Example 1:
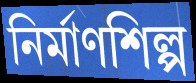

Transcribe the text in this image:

নির্মাণশিল্প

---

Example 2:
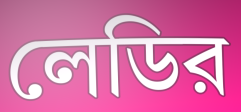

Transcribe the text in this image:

লেডির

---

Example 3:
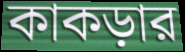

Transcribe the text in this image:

কাকড়ার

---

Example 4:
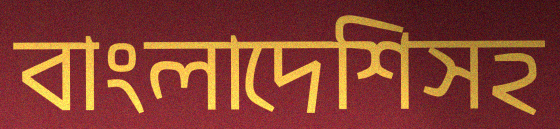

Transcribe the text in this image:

বাংলাদেশিসহ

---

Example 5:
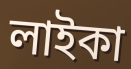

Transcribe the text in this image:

লাইকা